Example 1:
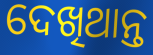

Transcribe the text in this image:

ଦେଖିଥାନ୍ତ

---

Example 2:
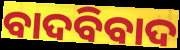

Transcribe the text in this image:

ବାଦବିବାଦ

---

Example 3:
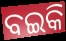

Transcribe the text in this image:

ବଇକି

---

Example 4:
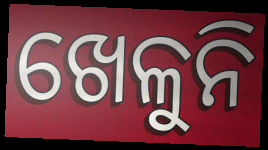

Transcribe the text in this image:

ଖେଳୁନି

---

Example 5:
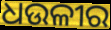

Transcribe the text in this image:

ଧଉଳୀର